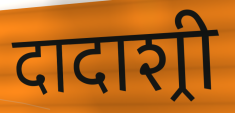
दादाश्री